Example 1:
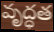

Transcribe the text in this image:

వృద్ధత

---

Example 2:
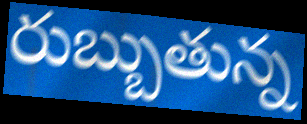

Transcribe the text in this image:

రుబ్బుతున్న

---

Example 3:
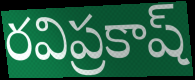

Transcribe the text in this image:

రవిప్రకాష్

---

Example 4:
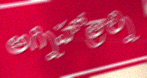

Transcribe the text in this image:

అగ్నిహోత్రాల్ని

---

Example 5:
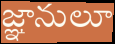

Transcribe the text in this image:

జ్ఞానులూ